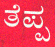
ತೆಪ್ಪ